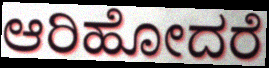
ಆರಿಹೋದರೆ